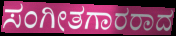
ಸಂಗೀತಗಾರರಾದ